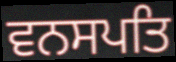
ਵਨਸਪਤਿ